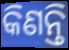
କିଣନ୍ତି